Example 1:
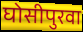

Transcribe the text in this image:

घोसीपुरवा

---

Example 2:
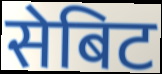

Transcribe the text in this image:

सेबिट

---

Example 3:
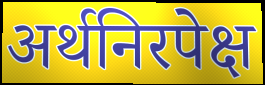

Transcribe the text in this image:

अर्थनिरपेक्ष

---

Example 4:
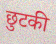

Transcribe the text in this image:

छुटकी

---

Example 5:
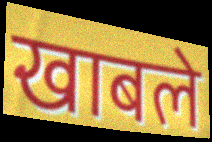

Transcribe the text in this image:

खाबले